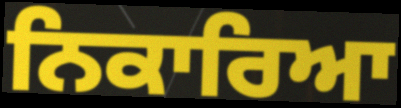
ਨਿਕਾਰਿਆ